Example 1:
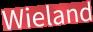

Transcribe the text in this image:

Wieland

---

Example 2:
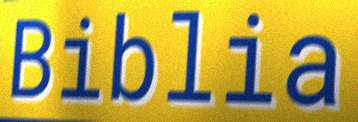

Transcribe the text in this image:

Biblia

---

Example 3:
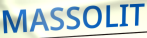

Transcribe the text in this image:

MASSOLIT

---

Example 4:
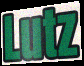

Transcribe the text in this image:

Lutz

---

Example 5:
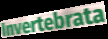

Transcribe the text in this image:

Invertebrata